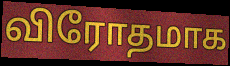
விரோதமாக